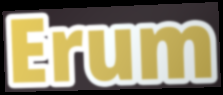
Erum